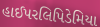
હાઈપરલિપિડેમિયા